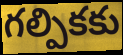
గల్పికకు